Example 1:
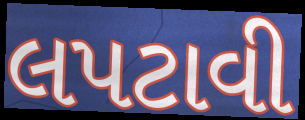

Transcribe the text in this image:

લપટાવી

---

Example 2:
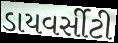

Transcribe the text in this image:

ડાયવર્સીટી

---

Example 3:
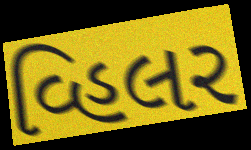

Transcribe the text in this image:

વ્હિલર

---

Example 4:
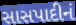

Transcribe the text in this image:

સાસપાદીનં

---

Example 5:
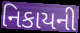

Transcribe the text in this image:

નિકાયની